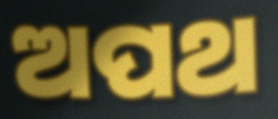
ଅପଥ